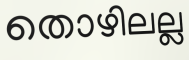
തൊഴിലല്ല